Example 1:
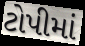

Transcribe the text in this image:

ટોપીમાં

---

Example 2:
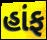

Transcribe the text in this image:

હાંફ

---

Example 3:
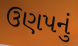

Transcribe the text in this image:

ઉણપનું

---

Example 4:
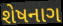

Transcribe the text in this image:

શેષનાગ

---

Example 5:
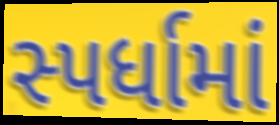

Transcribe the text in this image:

સ્પર્ધામાં